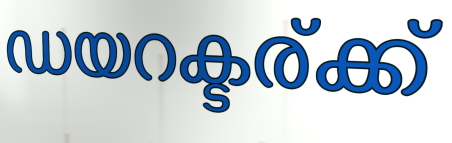
ഡയറക്ടര്ക്ക്